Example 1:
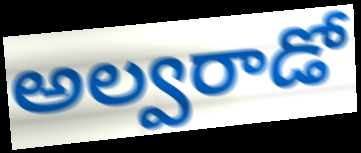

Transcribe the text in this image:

అల్వరాడో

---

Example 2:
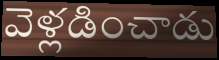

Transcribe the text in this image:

వెళ్లడించాడు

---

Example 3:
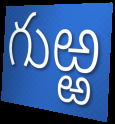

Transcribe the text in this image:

గుఱ్ఱ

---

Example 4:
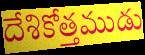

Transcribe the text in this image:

దేశికోత్తముడు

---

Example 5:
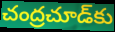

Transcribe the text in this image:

చంద్రచూడ్‌కు